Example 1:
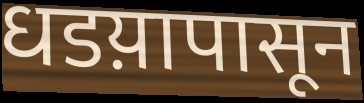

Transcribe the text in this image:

धडय़ापासून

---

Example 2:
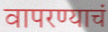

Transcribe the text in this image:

वापरण्याचं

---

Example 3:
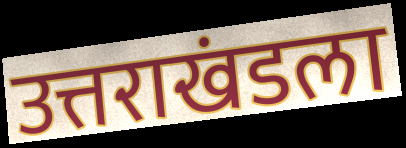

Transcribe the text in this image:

उत्तराखंडला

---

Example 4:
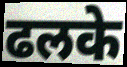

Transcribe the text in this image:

ढलके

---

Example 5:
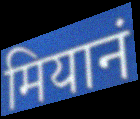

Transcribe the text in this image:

मियानं